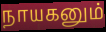
நாயகனும்